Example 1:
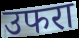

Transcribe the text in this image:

उफरा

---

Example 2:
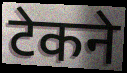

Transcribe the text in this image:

टेकने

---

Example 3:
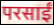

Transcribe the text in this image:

परसाईं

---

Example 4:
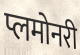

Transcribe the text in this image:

प्लमोनरी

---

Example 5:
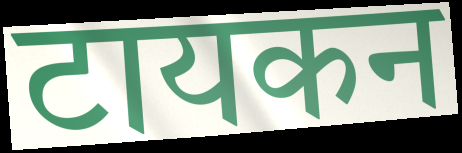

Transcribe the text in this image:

टायकन